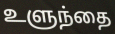
உளுந்தை